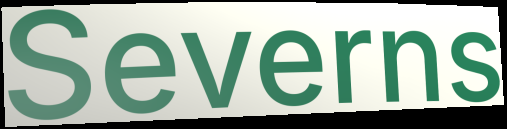
Severns